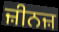
ਜ਼ੀਨਜ਼